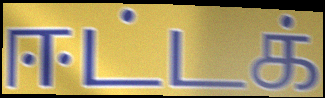
ஈட்டக்